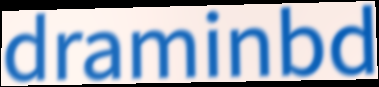
draminbd